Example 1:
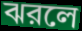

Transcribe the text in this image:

ঝরলে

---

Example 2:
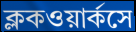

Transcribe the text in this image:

ক্লকওয়ার্কসে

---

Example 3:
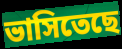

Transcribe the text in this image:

ভাসিতেছে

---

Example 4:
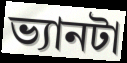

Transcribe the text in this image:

ভ্যানটা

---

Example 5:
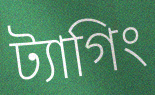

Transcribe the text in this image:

ট্যাগিং